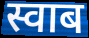
स्वाब